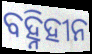
ବହ୍ନିହୀନ